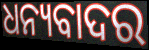
ଧନ୍ୟବାଦର